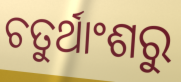
ଚତୁର୍ଥାଂଶରୁ